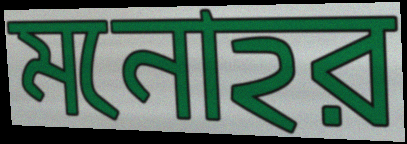
মনোহর